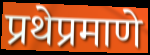
प्रथेप्रमाणे